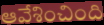
ఆవేశించింది